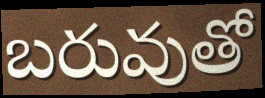
బరువుతో